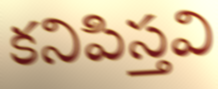
కనిపిస్తవి